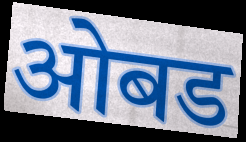
ओबड